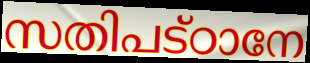
സതിപട്ഠാനേ